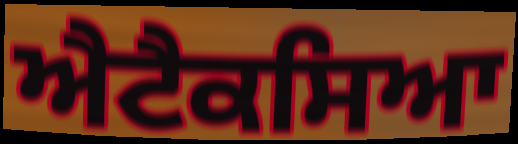
ਐਟੈਕਸਿਆ